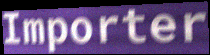
Importer